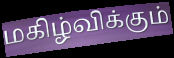
மகிழ்விக்கும்